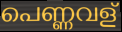
പെണ്ണവള്